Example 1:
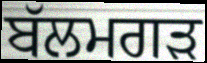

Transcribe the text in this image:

ਬੱਲਮਗੜ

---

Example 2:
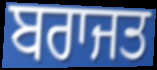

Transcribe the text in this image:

ਬਰਾਜਤ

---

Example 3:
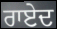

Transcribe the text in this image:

ਰਾਏਦ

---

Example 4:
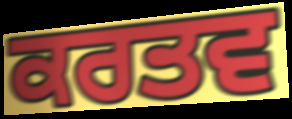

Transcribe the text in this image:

ਕਰਤਵ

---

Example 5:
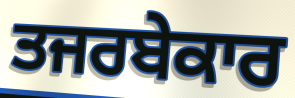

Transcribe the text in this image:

ਤਜਰਬੇਕਾਰ